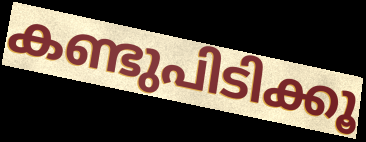
കണ്ടുപിടിക്കൂ